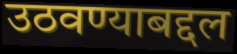
उठवण्याबद्दल